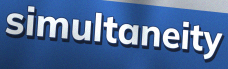
simultaneity